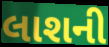
લાશની